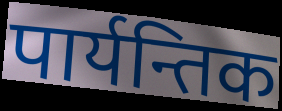
पार्यन्तिक